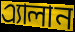
এ্যালান